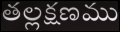
తల్లక్షణము